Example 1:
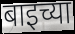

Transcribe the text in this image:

बाइच्या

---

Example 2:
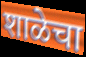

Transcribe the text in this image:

शाळेचा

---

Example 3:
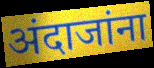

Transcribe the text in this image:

अंदाजांना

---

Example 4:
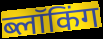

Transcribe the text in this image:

ब्लॉकिंग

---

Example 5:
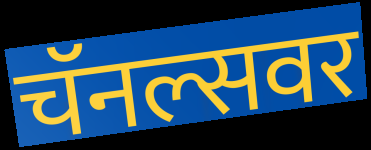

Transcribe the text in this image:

चॅनल्सवर